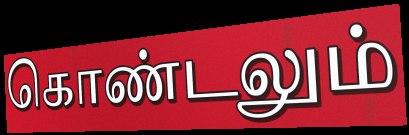
கொண்டலும்